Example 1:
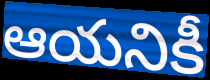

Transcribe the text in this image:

ఆయనికీ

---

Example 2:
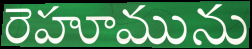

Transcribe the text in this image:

రెహూమును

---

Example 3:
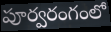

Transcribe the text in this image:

పూర్వరంగంలో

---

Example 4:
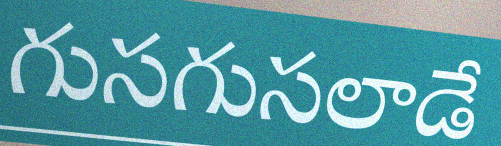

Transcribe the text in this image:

గుసగుసలాడే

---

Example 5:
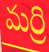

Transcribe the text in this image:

మర్రి